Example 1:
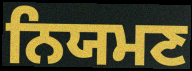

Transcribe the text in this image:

ਨਿਯਮਣ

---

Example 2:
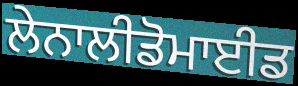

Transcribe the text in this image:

ਲੇਨਾਲੀਡੋਮਾਈਡ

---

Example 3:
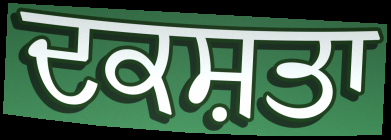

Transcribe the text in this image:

ਦਕਸ਼ਤਾ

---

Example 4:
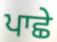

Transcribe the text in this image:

ਪਾਛੇ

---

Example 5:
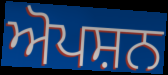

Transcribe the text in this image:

ਅੋਪਸ਼ਨ